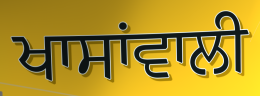
ਖਾਸਾਂਵਾਲੀ